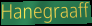
Hanegraaff